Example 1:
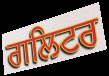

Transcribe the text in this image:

ਗਲਿਟਰ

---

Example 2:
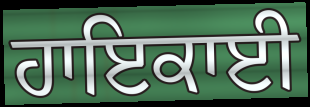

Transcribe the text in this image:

ਹਾਇਕਾਈ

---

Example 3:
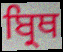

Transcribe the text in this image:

ਬ੍ਰਿਥ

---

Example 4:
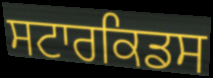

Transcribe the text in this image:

ਸਟਾਰਕਿਡਸ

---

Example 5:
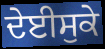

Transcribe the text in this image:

ਦੇਈਸੁਕੇ